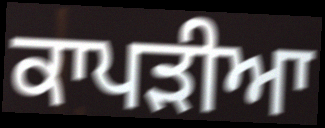
ਕਾਪੜੀਆ